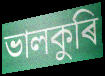
ভালকুৰি